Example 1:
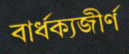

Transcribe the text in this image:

বার্ধক্যজীর্ণ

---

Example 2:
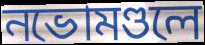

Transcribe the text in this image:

নভোমণ্ডলে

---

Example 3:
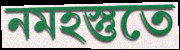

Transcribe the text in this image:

নমহস্তুতে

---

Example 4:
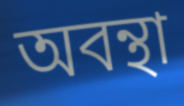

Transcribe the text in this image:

অবন্থা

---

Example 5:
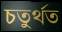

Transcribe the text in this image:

চতুর্থত